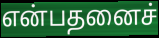
என்பதனைச்